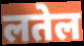
लतेल